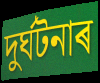
দুৰ্ঘটনাৰ